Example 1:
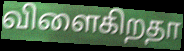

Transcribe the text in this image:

விளைகிறதா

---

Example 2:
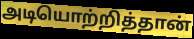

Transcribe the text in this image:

அடியொற்றித்தான்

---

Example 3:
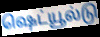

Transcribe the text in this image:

ஷெட்யூல்டு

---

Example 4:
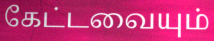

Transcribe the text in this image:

கேட்டவையும்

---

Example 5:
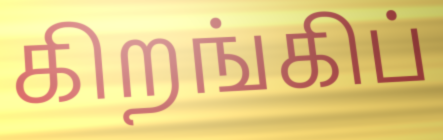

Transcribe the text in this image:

கிறங்கிப்